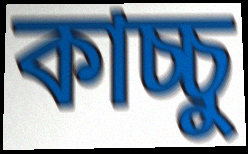
কাচ্চু